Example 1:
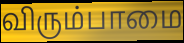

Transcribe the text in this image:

விரும்பாமை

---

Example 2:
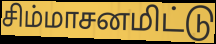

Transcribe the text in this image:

சிம்மாசனமிட்டு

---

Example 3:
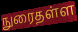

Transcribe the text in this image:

நுரைதள்ள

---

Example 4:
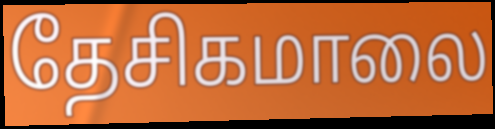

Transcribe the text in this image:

தேசிகமாலை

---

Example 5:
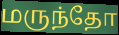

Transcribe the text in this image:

மருந்தோ